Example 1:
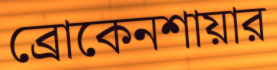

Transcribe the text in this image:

ব্রোকেনশায়ার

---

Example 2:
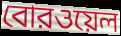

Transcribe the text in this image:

বোরওয়েল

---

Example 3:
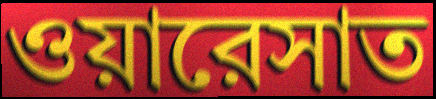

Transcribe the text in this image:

ওয়ারেসাত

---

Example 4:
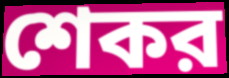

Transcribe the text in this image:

শেকর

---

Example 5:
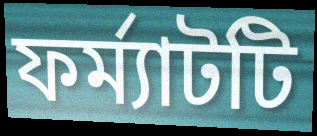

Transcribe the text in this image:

ফর্ম্যাটটি